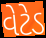
વેટેડ